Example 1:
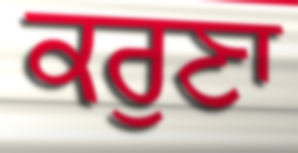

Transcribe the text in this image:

ਕਰੁਣਾ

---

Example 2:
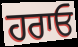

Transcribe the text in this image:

ਹਰਾਓ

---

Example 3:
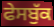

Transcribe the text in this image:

ਫੇਸਬੁੱਕ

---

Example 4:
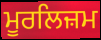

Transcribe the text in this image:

ਮੂਰਲਿਜ਼ਮ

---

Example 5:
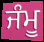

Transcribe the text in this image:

ਜੰਮੂ